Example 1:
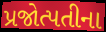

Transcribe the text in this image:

પ્રજોત્પતીના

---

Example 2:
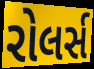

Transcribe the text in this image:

રોલર્સ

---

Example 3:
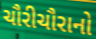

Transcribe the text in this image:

ચૌરીચૌરાનો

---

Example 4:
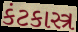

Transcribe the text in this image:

કંટકાસ્ત્ર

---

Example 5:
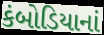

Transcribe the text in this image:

કંબોડિયાનાં